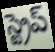
స్ట్రెప్